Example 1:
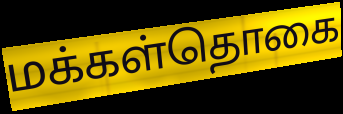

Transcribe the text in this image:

மக்கள்தொகை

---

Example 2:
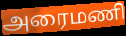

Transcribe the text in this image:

அரைமணி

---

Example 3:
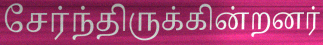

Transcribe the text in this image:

சேர்ந்திருக்கின்றனர்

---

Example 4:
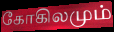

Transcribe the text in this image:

கோகிலமும்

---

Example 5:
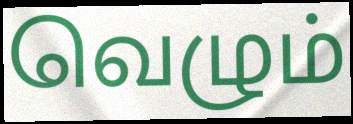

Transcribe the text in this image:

வெழும்